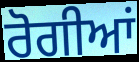
ਰੋਗੀਆਂ